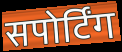
सपोर्टिंग